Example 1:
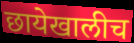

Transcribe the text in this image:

छायेखालीच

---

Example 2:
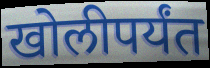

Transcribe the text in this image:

खोलीपर्यंत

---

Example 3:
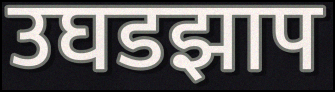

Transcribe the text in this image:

उघडझाप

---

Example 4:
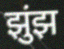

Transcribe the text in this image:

झुंझ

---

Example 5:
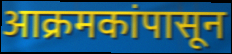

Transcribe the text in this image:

आक्रमकांपासून